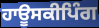
ਹਾਊਸਕੀਪਿੰਗ